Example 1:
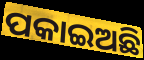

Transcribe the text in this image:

ପକାଇଅଛି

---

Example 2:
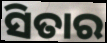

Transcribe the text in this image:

ସିତାର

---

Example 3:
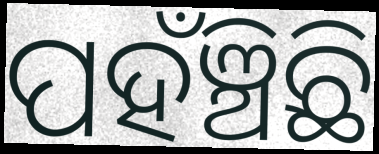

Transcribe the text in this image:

ପହଁଞ୍ଚିଛି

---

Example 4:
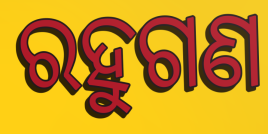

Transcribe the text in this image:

ରହୁଗଣ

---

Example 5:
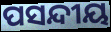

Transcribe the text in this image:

ପସନ୍ଦୀୟ